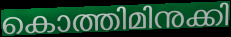
കൊത്തിമിനുക്കി